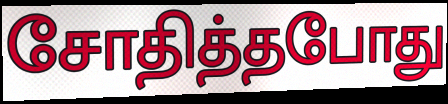
சோதித்தபோது